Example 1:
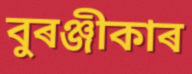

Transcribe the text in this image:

বুৰঞ্জীকাৰ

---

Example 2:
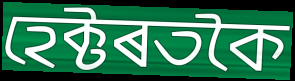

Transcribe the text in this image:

হেক্টৰতকৈ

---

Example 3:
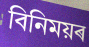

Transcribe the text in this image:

বিনিময়ৰ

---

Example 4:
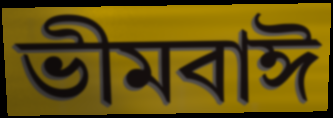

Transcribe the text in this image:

ভীমবাঈ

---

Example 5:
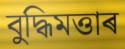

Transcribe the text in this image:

বুদ্ধিমত্তাৰ